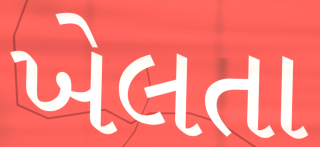
ખેલતા